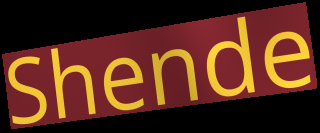
Shende